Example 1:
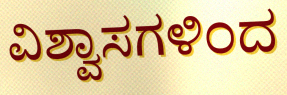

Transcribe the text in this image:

ವಿಶ್ವಾಸಗಳಿಂದ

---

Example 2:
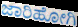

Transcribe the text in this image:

ಜಾರಿಹೋಗಿ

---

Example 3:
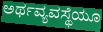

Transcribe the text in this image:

ಅರ್ಥವ್ಯವಸ್ಥೆಯೂ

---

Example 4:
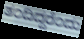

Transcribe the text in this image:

ತಂದಿದ್ದರೆಂದು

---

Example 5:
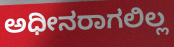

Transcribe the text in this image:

ಅಧೀನರಾಗಲಿಲ್ಲ